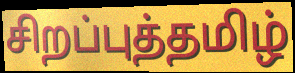
சிறப்புத்தமிழ்